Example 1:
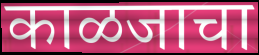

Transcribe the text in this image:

काळजाचा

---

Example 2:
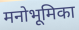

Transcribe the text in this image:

मनोभूमिका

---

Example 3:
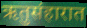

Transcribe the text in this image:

ऋतुसंहारात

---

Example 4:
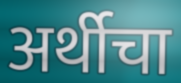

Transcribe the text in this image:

अर्थीचा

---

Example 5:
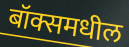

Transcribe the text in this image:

बॉक्समधील